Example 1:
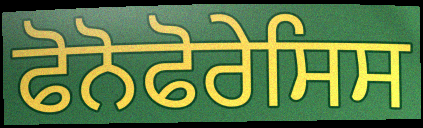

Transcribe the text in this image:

ਫੋਨੋਫੋਰੇਸਿਸ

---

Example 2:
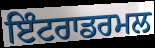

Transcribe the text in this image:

ਇੰਟਰਾਡਰਮਲ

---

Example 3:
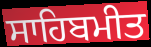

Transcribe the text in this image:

ਸਾਹਿਬਮੀਤ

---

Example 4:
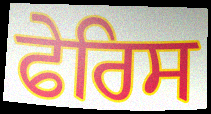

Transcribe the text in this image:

ਫੇਰਿਸ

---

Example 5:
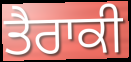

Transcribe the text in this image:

ਤੈਰਾਕੀ